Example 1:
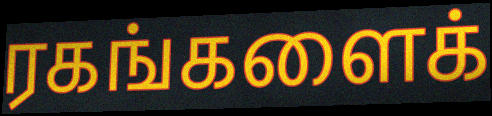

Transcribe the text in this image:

ரகங்களைக்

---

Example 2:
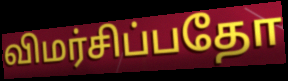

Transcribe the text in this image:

விமர்சிப்பதோ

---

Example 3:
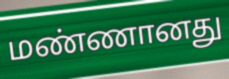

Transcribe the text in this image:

மண்ணானது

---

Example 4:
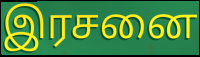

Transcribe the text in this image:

இரசனை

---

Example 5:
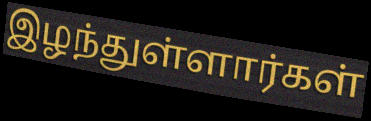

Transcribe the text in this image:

இழந்துள்ளார்கள்